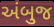
અંબુજ